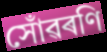
সোঁৱৰণি